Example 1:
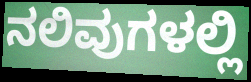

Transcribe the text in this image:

ನಲಿವುಗಳಲ್ಲಿ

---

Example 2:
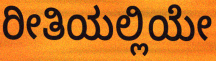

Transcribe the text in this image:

ರೀತಿಯಲ್ಲಿಯೇ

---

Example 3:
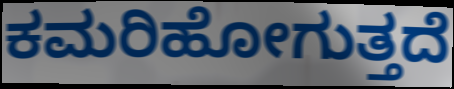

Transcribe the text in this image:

ಕಮರಿಹೋಗುತ್ತದೆ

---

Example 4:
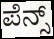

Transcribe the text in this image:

ಪೆನ್ಸ್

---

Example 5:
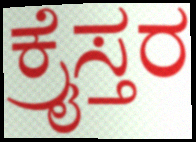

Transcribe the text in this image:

ಕ್ರೈಸ್ತರ